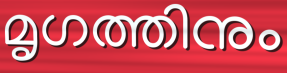
മൃഗത്തിനും